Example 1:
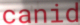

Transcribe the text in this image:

canid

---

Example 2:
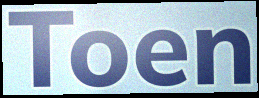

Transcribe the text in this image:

Toen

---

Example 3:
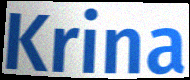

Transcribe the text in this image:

Krina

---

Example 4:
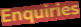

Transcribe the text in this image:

Enquiries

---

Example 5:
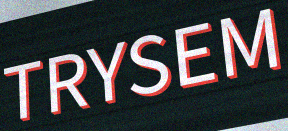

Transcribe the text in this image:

TRYSEM